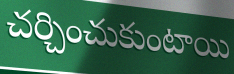
చర్చించుకుంటాయి